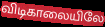
விடிகாலையிலே